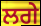
ਲਗੇ